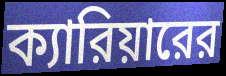
ক্যারিয়ারের